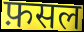
फ़सल